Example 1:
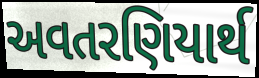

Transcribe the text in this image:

અવતરણિયાર્થ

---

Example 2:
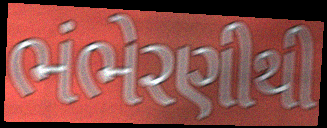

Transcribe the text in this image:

ભંભેરણીથી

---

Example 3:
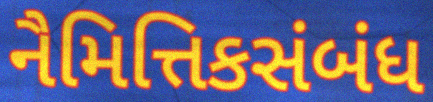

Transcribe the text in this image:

નૈમિત્તિકસંબંધ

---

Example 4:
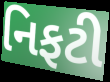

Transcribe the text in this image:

નિફટી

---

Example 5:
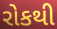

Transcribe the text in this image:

રોકથી